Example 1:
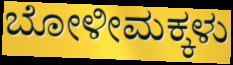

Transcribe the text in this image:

ಬೋಳೀಮಕ್ಕಳು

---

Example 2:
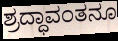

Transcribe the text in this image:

ಶ್ರದ್ಧಾವಂತನೂ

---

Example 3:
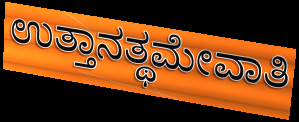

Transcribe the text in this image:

ಉತ್ತಾನತ್ಥಮೇವಾತಿ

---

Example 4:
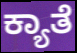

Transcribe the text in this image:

ಕ್ಯಾತೆ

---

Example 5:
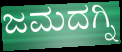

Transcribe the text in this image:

ಜಮದಗ್ನಿ